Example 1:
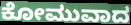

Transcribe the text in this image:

ಕೋಮುವಾದ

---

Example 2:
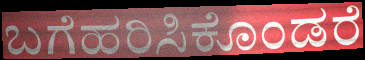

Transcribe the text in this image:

ಬಗೆಹರಿಸಿಕೊಂಡರೆ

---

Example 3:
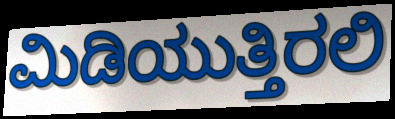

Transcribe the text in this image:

ಮಿಡಿಯುತ್ತಿರಲಿ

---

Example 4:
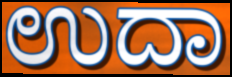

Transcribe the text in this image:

ಉದಾ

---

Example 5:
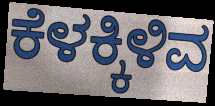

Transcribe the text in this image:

ಕೆಳಕ್ಕಿಳಿವ